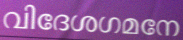
വിദേശഗമനേ